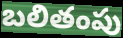
బలితంపు